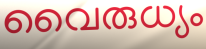
വൈരുധ്യം